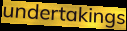
undertakings